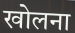
खोलना